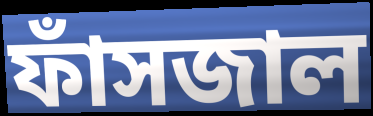
ফাঁসজাল